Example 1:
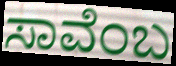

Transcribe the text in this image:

ಸಾವೆಂಬ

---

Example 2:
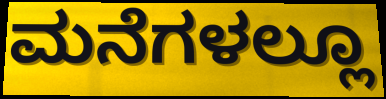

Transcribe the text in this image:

ಮನೆಗಳಲ್ಲೂ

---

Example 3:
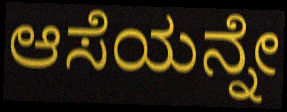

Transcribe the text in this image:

ಆಸೆಯನ್ನೇ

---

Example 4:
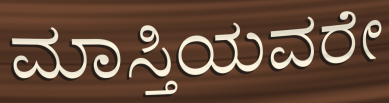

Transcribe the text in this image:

ಮಾಸ್ತಿಯವರೇ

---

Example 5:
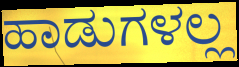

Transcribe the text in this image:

ಹಾಡುಗಳಲ್ಲ